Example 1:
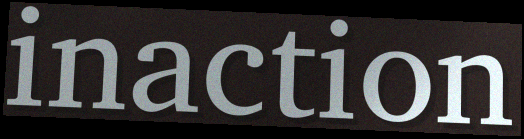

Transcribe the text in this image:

inaction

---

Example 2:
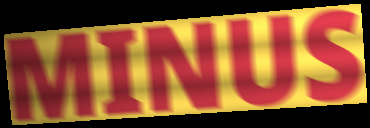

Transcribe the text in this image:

MINUS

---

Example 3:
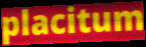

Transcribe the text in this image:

placitum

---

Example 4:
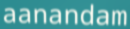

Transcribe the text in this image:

aanandam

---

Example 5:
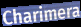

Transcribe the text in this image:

Charimera